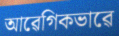
আৱেগিকভাৱে